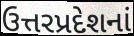
ઉત્તરપ્રદેશનાં